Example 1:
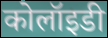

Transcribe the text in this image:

कोलॉइडी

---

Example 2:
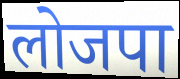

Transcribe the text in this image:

लोजपा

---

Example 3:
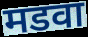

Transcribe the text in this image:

मडवा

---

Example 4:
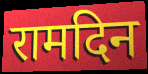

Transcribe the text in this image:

रामदिन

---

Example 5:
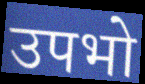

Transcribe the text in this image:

उपभो